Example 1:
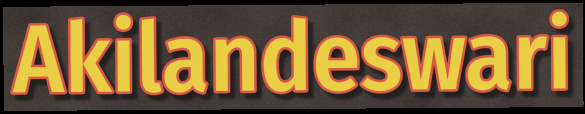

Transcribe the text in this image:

Akilandeswari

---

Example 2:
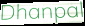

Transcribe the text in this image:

Dhanpal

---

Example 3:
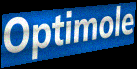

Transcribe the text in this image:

Optimole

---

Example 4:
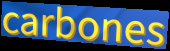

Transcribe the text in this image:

carbones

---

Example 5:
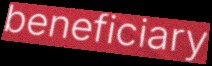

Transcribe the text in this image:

beneficiary